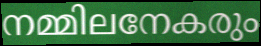
നമ്മിലനേകരും